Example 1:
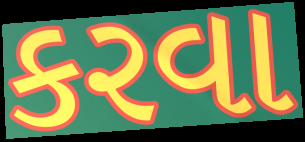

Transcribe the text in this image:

કરવા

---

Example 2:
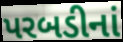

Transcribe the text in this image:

પરબડીનાં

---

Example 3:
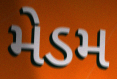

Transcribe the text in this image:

મેડમ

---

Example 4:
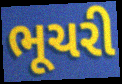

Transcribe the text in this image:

ભૂચરી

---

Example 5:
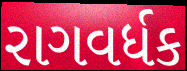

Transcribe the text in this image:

રાગવર્ધક